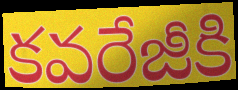
కవరేజీకి